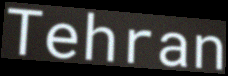
Tehran